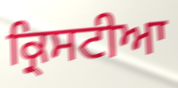
ਕ੍ਰਿਸਟੀਆ